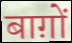
बाग़ों